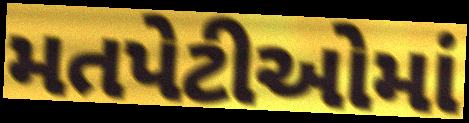
મતપેટીઓમાં